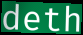
deth